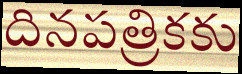
దినపత్రికకు